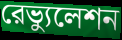
রেভ্যুলেশন